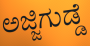
ಅಜ್ಜಿಗುಡ್ಡೆ